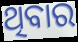
ଥିବାର